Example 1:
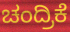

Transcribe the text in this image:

ಚಂದ್ರಿಕೆ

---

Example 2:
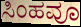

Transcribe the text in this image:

ಸಿಂಹವೂ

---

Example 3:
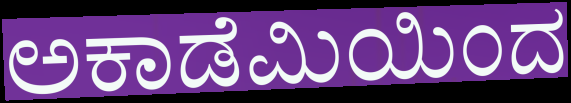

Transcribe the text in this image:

ಅಕಾಡೆಮಿಯಿಂದ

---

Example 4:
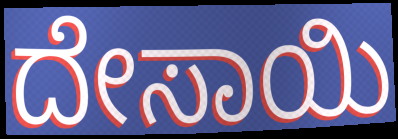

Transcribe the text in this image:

ದೇಸಾಯಿ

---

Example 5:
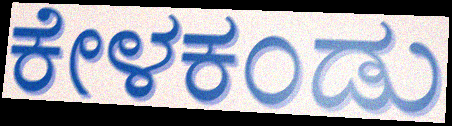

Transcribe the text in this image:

ಕೇಳಕಂಡು